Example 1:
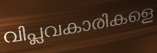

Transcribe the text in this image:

വിപ്ലവകാരികളെ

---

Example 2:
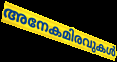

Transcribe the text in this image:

അനേകമിരവുകൾ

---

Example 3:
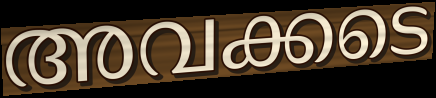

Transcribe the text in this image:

അവക്കടെ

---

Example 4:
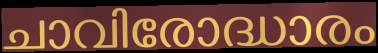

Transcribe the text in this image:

ചാവിരോദ്ധാരം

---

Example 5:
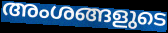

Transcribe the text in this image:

അംശങ്ങളുടെ